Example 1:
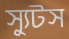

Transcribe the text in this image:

স্যুটস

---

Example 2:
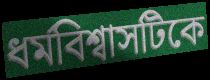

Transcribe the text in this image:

ধর্মবিশ্বাসটিকে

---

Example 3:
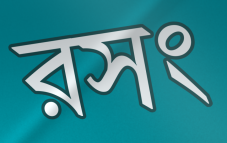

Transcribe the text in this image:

রসং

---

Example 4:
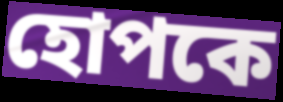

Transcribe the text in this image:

হোপকে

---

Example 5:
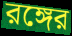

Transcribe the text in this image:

রঙ্গের